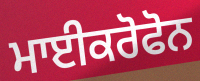
ਮਾਈਕਰੋਫੋਨ